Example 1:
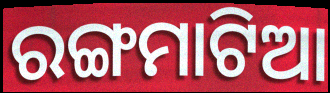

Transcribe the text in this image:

ରଙ୍ଗମାଟିଆ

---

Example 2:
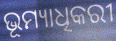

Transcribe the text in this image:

ଭୂମ୍ୟାଧିକରୀ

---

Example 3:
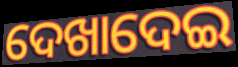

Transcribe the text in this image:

ଦେଖାଦେଇ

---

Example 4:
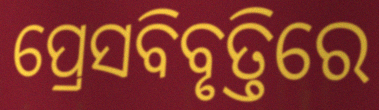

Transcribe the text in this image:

ପ୍ରେସବିବୃତ୍ତିରେ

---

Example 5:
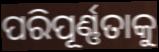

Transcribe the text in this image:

ପରିପୂର୍ଣ୍ଣତାକୁ